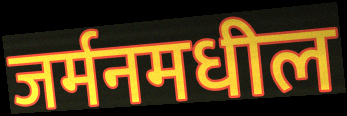
जर्मनमधील